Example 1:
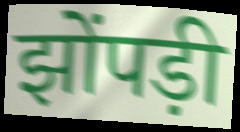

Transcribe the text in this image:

झोंपड़ी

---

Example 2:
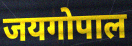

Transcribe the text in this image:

जयगोपाल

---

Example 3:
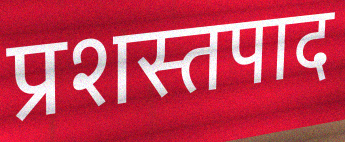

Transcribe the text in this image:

प्रशस्तपाद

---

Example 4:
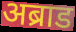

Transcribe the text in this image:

अब्राड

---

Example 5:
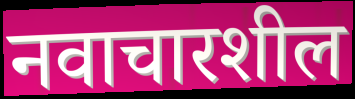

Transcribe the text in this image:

नवाचारशील